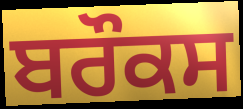
ਬਰੌਕਸ